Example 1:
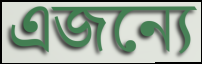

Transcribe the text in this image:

এজন্যে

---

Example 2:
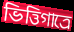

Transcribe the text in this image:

ভিত্তিগাত্রে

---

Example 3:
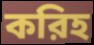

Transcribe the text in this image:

করিহ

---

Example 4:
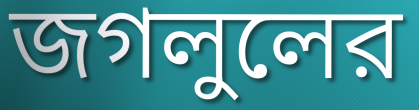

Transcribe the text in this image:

জগলুলের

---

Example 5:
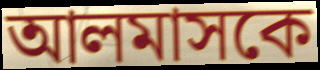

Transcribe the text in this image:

আলমাসকে